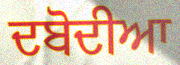
ਦਬੋਦੀਆ